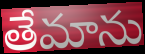
తేమాను